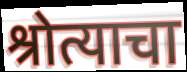
श्रोत्याचा